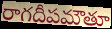
రాగదీపమౌతూ